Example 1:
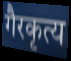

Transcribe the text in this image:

गैरकृत्य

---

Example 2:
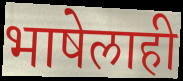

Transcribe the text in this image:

भाषेलाही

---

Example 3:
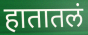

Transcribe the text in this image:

हातातलं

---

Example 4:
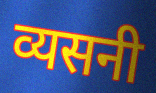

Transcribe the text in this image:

व्यसनी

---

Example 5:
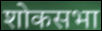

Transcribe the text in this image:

शोकसभा